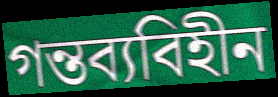
গন্তব্যবিহীন